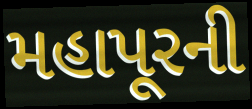
મહાપૂરની